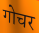
गोचर